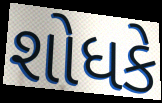
શોધકે